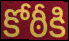
కోఠీకి